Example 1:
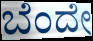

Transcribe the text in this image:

ಬೆಂದೇ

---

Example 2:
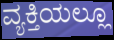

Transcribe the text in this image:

ವ್ಯಕ್ತಿಯಲ್ಲೂ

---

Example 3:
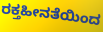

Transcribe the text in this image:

ರಕ್ತಹೀನತೆಯಿಂದ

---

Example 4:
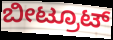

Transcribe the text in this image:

ಬೀಟ್ರೂಟ್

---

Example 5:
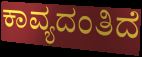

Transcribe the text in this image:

ಕಾವ್ಯದಂತಿದೆ